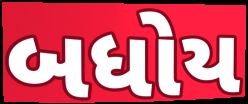
બધોય